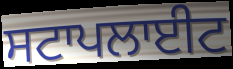
ਸਟਾਪਲਾਈਟ